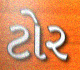
ટોર